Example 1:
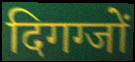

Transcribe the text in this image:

दिगग्जों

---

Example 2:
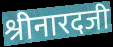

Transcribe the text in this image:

श्रीनारदजी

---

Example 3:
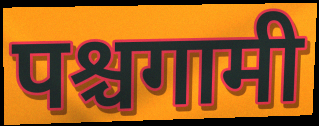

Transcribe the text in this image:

पश्चगामी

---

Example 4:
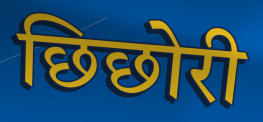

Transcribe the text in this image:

छिछोरी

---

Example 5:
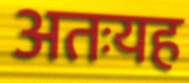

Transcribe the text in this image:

अतःयह